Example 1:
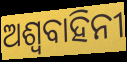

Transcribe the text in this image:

ଅଶ୍ୱବାହିନୀ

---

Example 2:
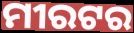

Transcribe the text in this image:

ମୀରଟର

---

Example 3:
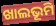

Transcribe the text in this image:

ଖାଲଭୂମି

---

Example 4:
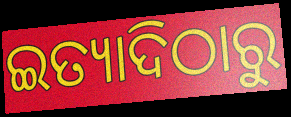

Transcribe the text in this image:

ଇତ୍ୟାଦିଠାରୁ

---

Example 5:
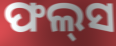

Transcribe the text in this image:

ଫଲ୍‌ସ